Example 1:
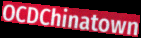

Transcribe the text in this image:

OCDChinatown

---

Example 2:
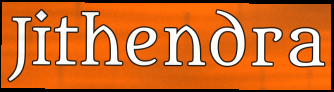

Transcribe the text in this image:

Jithendra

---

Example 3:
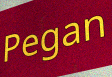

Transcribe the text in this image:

Pegan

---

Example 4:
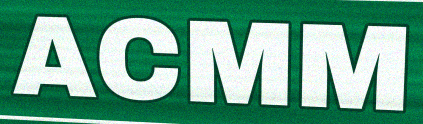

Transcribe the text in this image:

ACMM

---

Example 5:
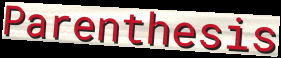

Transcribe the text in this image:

Parenthesis